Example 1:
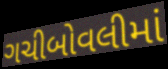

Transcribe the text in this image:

ગચીબોવલીમાં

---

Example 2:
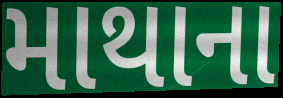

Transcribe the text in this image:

માથાના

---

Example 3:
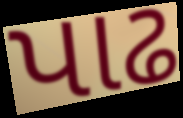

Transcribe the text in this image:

પાઢ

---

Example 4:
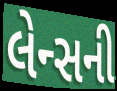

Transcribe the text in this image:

લેન્સની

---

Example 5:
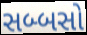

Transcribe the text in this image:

સબ્બસો